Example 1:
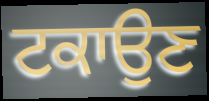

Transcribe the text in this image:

ਟਕਾਉਣ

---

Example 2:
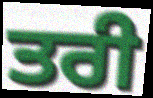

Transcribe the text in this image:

ਤਰੀ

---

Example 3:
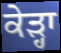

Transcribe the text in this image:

ਕੇੜ੍ਹਾ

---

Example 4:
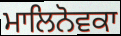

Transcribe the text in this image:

ਮਾਲਿਨੋਵਕਾ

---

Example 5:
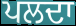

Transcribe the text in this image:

ਪਲਦਾ